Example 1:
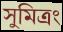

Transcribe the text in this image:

সুমিত্রং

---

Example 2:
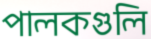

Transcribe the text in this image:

পালকগুলি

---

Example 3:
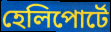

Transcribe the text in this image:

হেলিপোর্টে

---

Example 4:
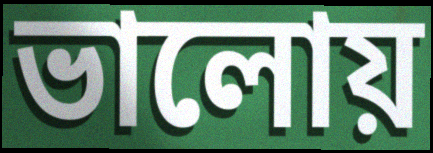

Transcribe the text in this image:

ভালোয়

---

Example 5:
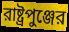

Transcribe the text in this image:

রাষ্ট্রপুঞ্জের